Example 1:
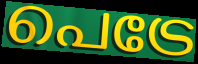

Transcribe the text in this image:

പെട്രേ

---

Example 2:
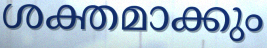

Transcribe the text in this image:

ശക്തമാക്കും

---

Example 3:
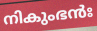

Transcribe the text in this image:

നികുംഭൻഃ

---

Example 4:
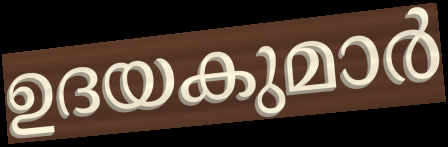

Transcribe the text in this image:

ഉദയകുമാർ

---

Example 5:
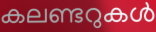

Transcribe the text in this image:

കലണ്ടറുകൾ